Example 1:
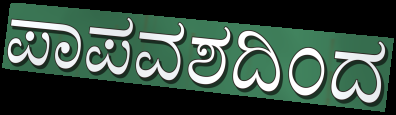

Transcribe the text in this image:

ಪಾಪವಶದಿಂದ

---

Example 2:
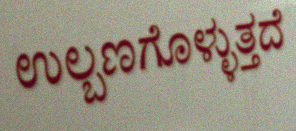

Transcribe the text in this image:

ಉಲ್ಬಣಗೊಳ್ಳುತ್ತದೆ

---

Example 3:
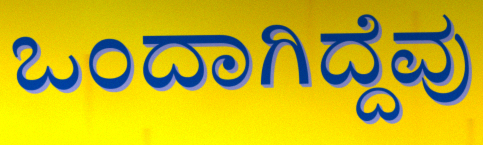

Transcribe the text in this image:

ಒಂದಾಗಿದ್ದೆವು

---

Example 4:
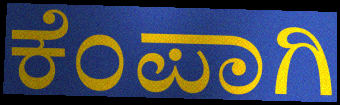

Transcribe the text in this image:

ಕೆಂಪಾಗಿ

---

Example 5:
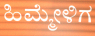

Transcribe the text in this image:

ಹಿಮ್ಮೇಳಿಗ